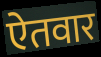
ऐतवार